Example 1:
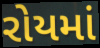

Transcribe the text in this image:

રોયમાં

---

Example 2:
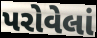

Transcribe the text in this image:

પરોવેલાં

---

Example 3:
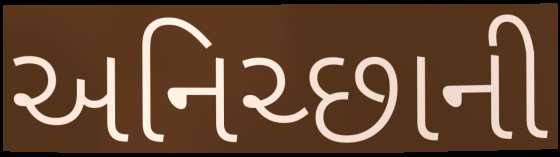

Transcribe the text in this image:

અનિચ્છાની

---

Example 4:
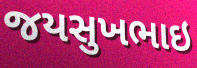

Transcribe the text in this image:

જયસુખભાઇ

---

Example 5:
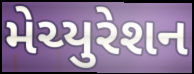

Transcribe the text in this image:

મેચ્યુરેશન